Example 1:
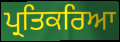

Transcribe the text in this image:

ਪ੍ਰਤਿਕਰਿਆ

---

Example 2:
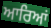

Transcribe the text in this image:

ਆਰਿਆਂ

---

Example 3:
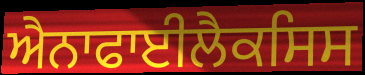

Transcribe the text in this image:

ਐਨਾਫਾਈਲੈਕਸਿਸ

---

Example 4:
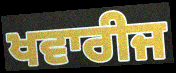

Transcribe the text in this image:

ਖਵਾਰੀਜ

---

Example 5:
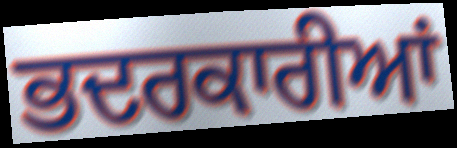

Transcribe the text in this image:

ਭਦਰਕਾਰੀਆਂ